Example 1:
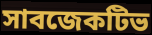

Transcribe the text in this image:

সাবজেকটিভ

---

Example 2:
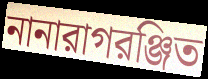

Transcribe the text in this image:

নানারাগরঞ্জিত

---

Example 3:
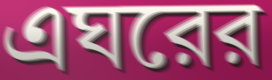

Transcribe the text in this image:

এঘরের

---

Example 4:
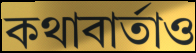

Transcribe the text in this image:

কথাবার্তাও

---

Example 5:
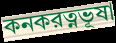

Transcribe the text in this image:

কনকরত্নভূষা